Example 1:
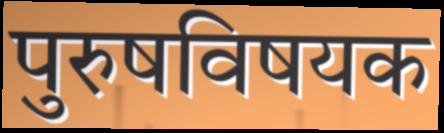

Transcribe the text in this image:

पुरुषविषयक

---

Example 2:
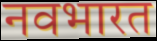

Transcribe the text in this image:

नवभारत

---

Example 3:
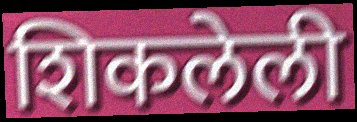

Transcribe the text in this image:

शिकलेली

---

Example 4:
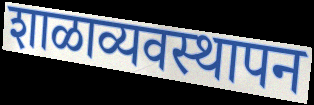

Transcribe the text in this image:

शाळाव्यवस्थापन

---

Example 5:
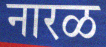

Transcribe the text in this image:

नारळ